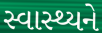
સ્વાસ્થ્યને